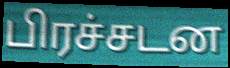
பிரச்சடன